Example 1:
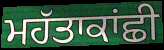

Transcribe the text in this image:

ਮਹੱਤਾਕਾਂਛੀ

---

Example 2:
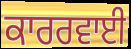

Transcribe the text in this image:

ਕਾਰਰਵਾਈ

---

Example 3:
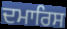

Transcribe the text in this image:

ਦਮਾਰਿਸ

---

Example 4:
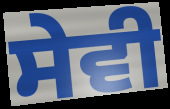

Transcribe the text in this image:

ਸੇਵੀ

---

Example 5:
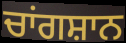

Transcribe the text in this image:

ਚਾਂਗਸ਼ਾਨ